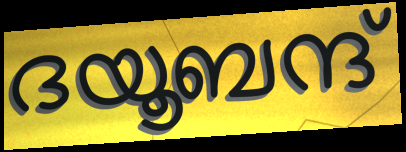
ദയൂബന്ദ്